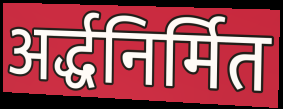
अर्द्धनिर्मित